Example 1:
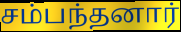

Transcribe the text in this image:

சம்பந்தனார்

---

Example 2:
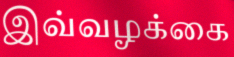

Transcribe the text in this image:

இவ்வழக்கை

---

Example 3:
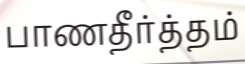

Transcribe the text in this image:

பாணதீர்த்தம்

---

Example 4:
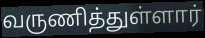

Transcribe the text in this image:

வருணித்துள்ளார்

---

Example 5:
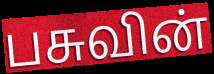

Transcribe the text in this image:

பசுவின்